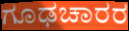
ಗೂಢಚಾರರ